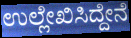
ಉಲ್ಲೇಖಿಸಿದ್ದೇನೆ